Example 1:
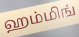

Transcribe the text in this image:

ஹம்மிங்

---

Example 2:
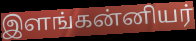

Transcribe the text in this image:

இளங்கன்னியர்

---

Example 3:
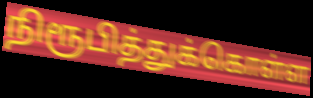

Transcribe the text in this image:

நிரூபித்துக்கொள்ள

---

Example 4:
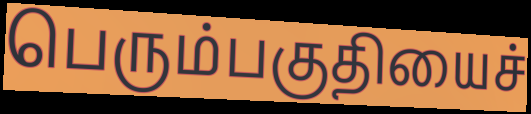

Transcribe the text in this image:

பெரும்பகுதியைச்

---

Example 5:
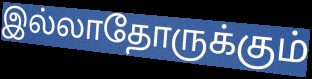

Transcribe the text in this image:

இல்லாதோருக்கும்